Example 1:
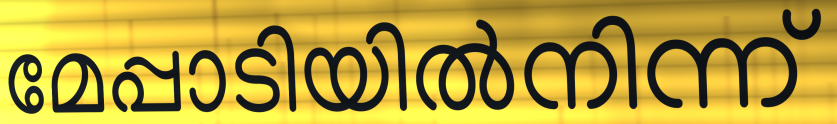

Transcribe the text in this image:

മേപ്പാടിയിൽനിന്ന്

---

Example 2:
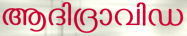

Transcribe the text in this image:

ആദിദ്രാവിഡ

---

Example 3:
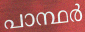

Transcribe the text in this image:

പാന്ഥർ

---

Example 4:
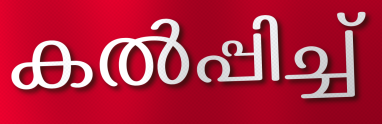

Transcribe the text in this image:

കൽപ്പിച്ച്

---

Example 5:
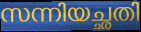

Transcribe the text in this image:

സന്നിയച്ഛതി